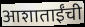
आशाताईंची